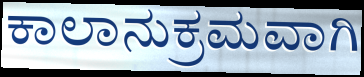
ಕಾಲಾನುಕ್ರಮವಾಗಿ